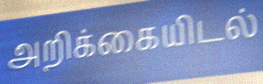
அறிக்கையிடல்